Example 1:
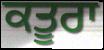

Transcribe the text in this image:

ਕਤੂਰਾ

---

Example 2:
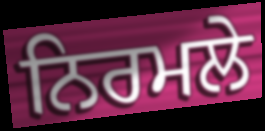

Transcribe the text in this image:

ਨਿਰਮਲੇ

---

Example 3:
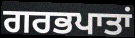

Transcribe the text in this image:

ਗਰਭਪਾਤਾਂ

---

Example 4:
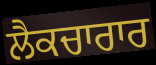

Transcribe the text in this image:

ਲੈਕਚਾਰਾਰ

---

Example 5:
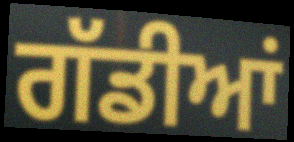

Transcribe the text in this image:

ਗੱਡੀਆਂ